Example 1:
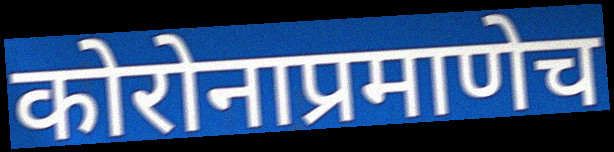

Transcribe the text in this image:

कोरोनाप्रमाणेच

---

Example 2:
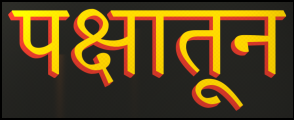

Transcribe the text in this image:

पक्षातून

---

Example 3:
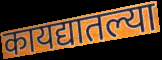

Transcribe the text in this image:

कायद्यातल्या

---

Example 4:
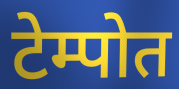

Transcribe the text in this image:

टेम्पोत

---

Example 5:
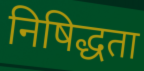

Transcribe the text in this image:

निषिद्धता